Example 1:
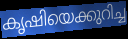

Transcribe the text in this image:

കൃഷിയെക്കുറിച്ച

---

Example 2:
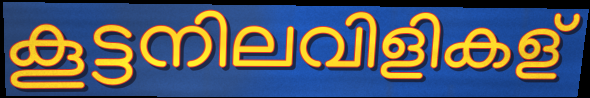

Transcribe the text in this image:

കൂട്ടനിലവിളികള്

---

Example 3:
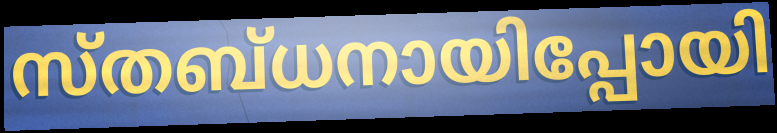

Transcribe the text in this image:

സ്തബ്ധനായിപ്പോയി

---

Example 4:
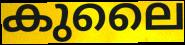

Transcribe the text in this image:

കുലൈ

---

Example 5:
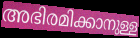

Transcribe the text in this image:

അഭിരമിക്കാനുള്ള